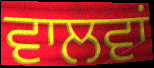
ਵਾਲਵਾਂ